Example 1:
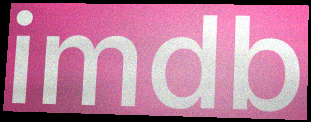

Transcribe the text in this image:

imdb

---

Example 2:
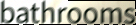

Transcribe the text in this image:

bathrooms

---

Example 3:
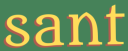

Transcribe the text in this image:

sant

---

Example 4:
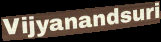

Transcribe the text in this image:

Vijyanandsuri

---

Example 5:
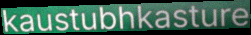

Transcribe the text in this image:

kaustubhkasture